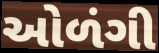
ઓળંગી